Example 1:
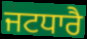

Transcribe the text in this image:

ਜਟਧਾਰੈ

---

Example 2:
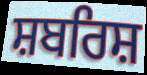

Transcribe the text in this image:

ਸ਼ਬਰਿਸ਼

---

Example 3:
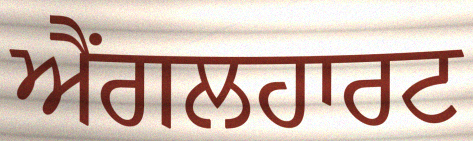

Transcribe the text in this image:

ਐਂਗਲਹਾਰਟ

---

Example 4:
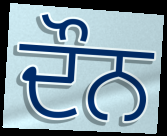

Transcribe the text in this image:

ਦੌਨ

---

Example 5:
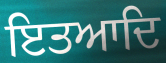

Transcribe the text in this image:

ਇਤਆਦਿ